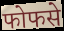
फोफसे